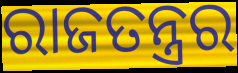
ରାଜତନ୍ତ୍ରର